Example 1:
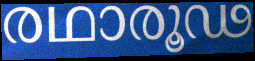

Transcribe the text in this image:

രഥാരൂഢ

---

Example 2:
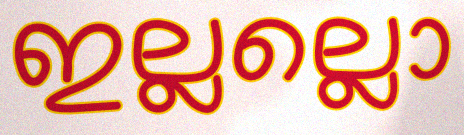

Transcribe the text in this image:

ഇല്ലല്ലൊ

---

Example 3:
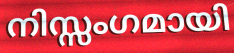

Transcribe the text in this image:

നിസ്സംഗമായി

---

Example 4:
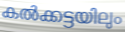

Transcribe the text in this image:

കൽക്കട്ടയിലും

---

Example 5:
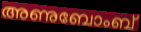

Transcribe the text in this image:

അണുബോംബ്